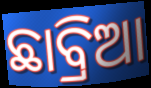
ଛାବ୍ରିଆ